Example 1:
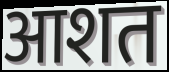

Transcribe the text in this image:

आशत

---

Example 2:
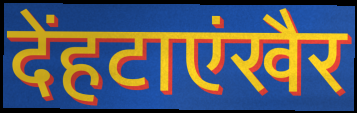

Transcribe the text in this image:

देंहटाएंखैर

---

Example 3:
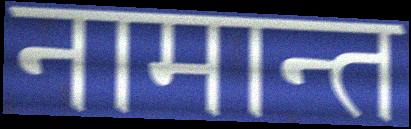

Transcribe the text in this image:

नामान्त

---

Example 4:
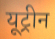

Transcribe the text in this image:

यूट्रीन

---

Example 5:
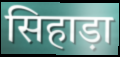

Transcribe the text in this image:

सिहाड़ा